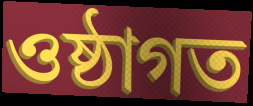
ওষ্ঠাগত